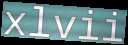
xlvii